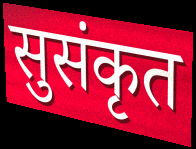
सुसंकृत